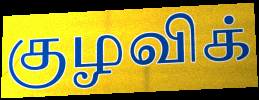
குழவிக்